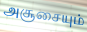
அசூசையும்